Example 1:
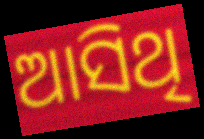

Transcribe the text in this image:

ଆସିଥି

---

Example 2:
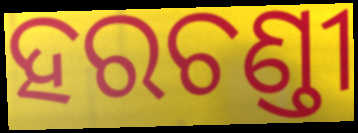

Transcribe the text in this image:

ହରଚଣ୍ଡୀ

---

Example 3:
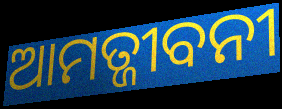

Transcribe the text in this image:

ଆମତ୍ଜୀବନୀ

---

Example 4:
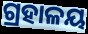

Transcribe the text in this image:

ଗ୍ରହାଳୟ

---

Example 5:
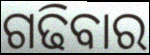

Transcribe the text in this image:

ଗଢିବାର